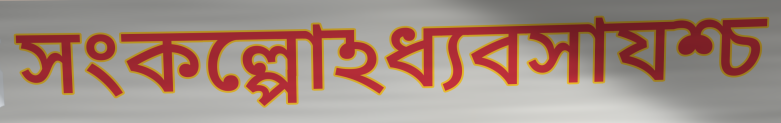
সংকল্পোঽধ্যবসাযশ্চ